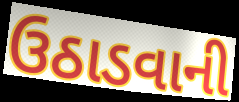
ઉઠાડવાની